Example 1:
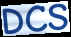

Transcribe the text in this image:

DCS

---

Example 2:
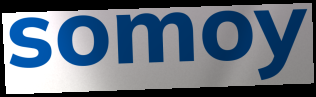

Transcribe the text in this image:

somoy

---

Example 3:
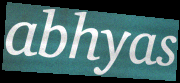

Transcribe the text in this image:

abhyas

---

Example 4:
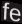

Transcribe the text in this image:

fe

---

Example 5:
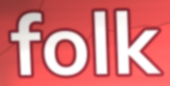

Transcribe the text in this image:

folk